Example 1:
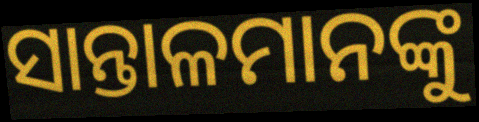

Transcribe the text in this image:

ସାନ୍ତାଳମାନଙ୍କୁ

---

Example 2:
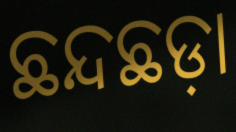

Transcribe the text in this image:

ଛନ୍ଦଛଡ଼ା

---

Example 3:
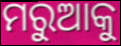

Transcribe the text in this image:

ମରୁଆକୁ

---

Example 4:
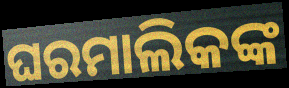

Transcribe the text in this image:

ଘରମାଲିକଙ୍କ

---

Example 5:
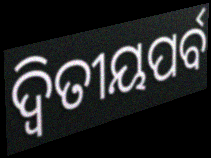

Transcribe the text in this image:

ଦ୍ୱିତୀୟପର୍ବ